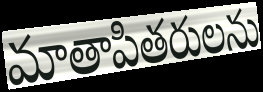
మాతాపితరులను